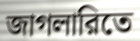
জাগলারিতে